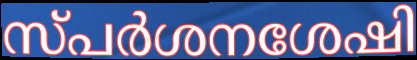
സ്പർശനശേഷി